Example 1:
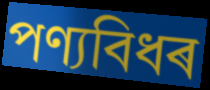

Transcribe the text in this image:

পণ্যবিধৰ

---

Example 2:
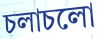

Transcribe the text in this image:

চলাচলো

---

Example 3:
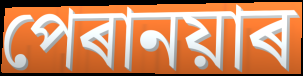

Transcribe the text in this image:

পেৰানয়াৰ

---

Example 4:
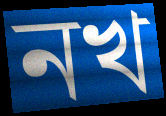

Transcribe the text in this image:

নখ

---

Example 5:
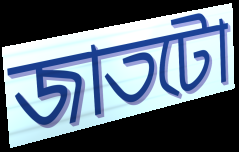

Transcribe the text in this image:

জাতটো